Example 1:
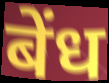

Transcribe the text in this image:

बेंध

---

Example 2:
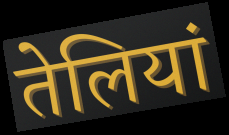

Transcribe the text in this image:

तेलियां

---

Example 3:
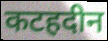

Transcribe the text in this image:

कटहदीन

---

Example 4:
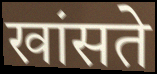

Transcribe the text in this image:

खांसते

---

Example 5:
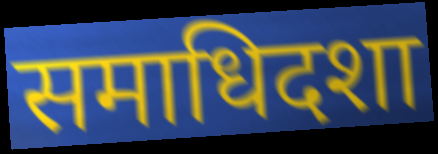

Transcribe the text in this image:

समाधिदशा